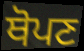
ਥੋਪਣ